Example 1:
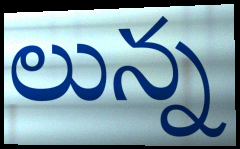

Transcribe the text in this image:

లున్న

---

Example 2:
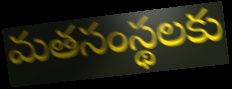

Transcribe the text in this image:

మతసంస్థలకు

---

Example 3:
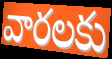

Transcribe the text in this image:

వారలకు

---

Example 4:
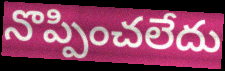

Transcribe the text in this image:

నొప్పించలేదు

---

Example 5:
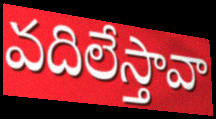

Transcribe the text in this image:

వదిలేస్తావా